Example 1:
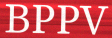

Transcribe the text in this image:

BPPV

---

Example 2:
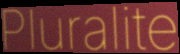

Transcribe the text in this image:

Pluralite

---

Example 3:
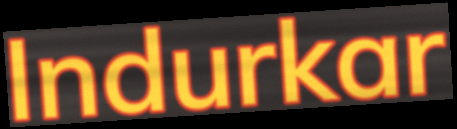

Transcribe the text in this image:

Indurkar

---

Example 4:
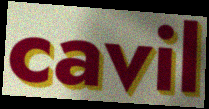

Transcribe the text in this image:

cavil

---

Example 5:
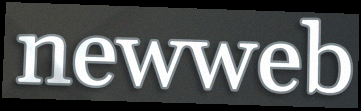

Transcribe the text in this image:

newweb